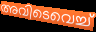
അവിടെവെച്ച്